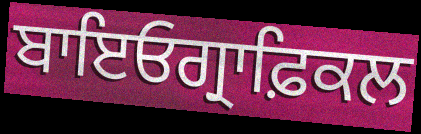
ਬਾਇਓਗ੍ਰਾਫ਼ਿਕਲ